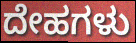
ದೇಹಗಳು